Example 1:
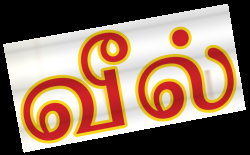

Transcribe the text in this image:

வீல்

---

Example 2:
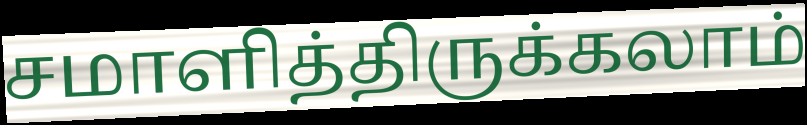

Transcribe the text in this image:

சமாளித்திருக்கலாம்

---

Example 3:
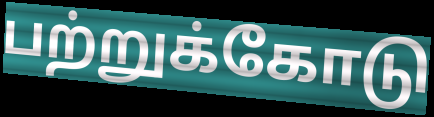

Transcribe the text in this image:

பற்றுக்கோடு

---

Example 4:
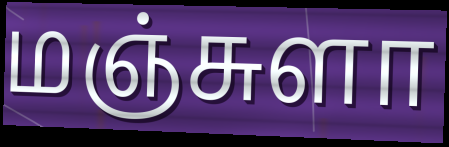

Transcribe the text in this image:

மஞ்சுளா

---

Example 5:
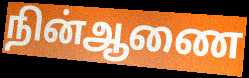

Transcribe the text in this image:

நின்ஆணை